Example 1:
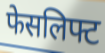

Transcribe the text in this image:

फेसलिफ्ट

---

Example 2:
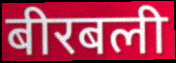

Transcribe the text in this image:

बीरबली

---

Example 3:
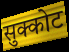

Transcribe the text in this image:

सुक्कोट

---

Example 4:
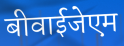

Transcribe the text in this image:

बीवाईजेएम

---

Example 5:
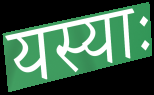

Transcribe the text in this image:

यस्याः